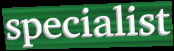
specialist